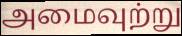
அமைவுற்று